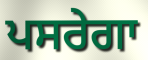
ਪਸਰੇਗਾ